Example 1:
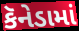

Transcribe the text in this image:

કૅનેડામાં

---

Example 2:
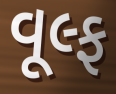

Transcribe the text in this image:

વૂલ્ફ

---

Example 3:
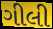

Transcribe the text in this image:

ગીલી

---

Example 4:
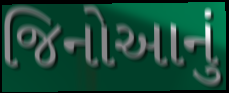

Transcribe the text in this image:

જિનોઆનું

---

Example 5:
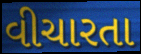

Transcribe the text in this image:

વીચારતા